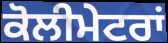
ਕੋਲੀਮੇਟਰਾਂ